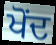
ਖੋਂਦ